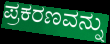
ಪ್ರಕರಣವನ್ನು